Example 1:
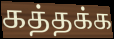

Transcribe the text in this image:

கத்தக்க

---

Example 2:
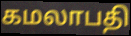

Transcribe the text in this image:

கமலாபதி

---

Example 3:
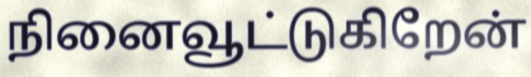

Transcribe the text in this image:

நினைவூட்டுகிறேன்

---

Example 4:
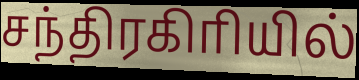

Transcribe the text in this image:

சந்திரகிரியில்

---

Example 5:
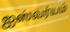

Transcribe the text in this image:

ஐஸ்வர்யம்